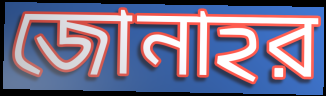
জোনাহর